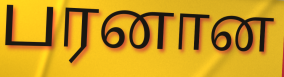
பரனான